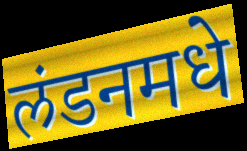
लंडनमधे